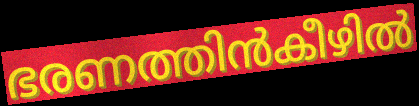
ഭരണത്തിൻകീഴിൽ